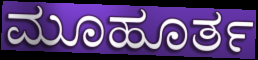
ಮೂಹೂರ್ತ